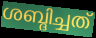
ശബ്ദിച്ചത്